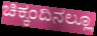
ಚಿಕ್ಕಂದಿನಲ್ಲೂ